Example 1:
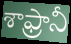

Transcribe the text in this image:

శాఫ్రానీ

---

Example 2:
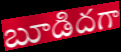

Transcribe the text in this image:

బూడిదగా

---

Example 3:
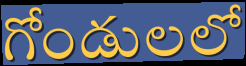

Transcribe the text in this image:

గోండులలో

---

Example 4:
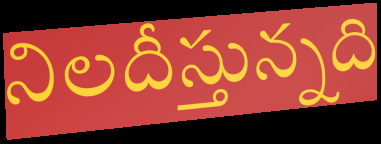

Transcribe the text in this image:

నిలదీస్తున్నది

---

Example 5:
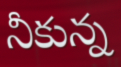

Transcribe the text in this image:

నీకున్న